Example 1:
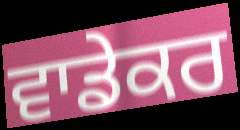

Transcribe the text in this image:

ਵਾਡੇਕਰ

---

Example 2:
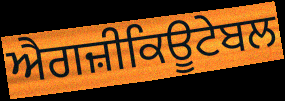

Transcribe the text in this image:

ਐਗਜ਼ੀਕਿਊਟੇਬਲ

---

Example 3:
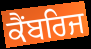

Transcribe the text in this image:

ਕੈਂਬਰਿਜ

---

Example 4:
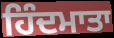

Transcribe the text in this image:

ਹਿੰਦਮਾਤਾ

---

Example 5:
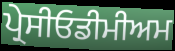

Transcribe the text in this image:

ਪ੍ਰੇਸੀਓਡੀਮੀਅਮ